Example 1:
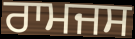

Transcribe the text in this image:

ਰਾਮਜਸ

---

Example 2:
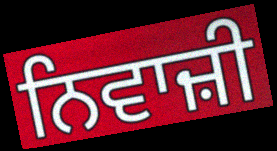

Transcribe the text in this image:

ਨਿਵਾਜ਼ੀ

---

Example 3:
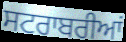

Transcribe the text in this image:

ਸਟਰਾਬਰੀਆਂ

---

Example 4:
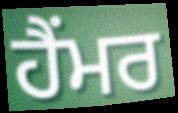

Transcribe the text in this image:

ਹੈਂਮਰ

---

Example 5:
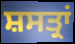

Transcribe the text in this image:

ਸ਼ਸਤ੍ਰਾਂ